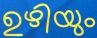
ഉഴിയും